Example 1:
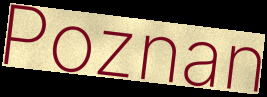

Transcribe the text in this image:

Poznan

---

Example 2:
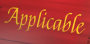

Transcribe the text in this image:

Applicable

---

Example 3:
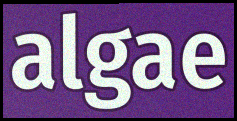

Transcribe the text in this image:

algae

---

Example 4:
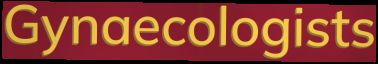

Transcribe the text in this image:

Gynaecologists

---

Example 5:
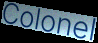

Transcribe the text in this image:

Colonel